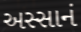
અસ્સાનં